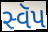
સ્વૅપ